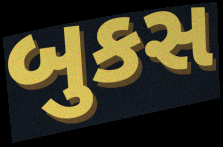
બુકસ